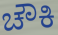
ಚೌಕಿ